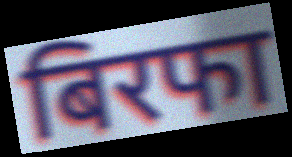
बिरफा